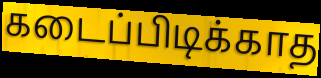
கடைப்பிடிக்காத